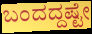
ಬಂದದ್ದಷ್ಟೇ